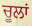
ਚੂਲਾਂ